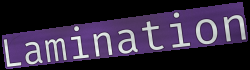
Lamination